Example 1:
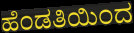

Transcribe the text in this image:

ಹೆಂಡತಿಯಿಂದ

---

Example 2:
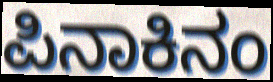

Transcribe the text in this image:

ಪಿನಾಕಿನಂ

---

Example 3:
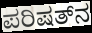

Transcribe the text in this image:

ಪರಿಷತ್‌ನ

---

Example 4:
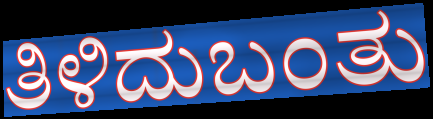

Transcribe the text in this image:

ತಿಳಿದುಬಂತು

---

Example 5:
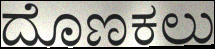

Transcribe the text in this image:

ದೊಣಕಲು